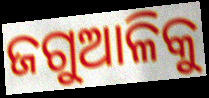
ଜଗୁଆଳିକୁ